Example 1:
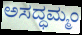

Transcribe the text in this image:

ಅಸದ್ಧಮ್ಮಂ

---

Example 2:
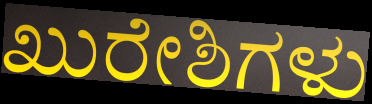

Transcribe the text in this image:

ಖುರೇಶಿಗಳು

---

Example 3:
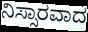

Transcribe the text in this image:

ನಿಸ್ಸಾರವಾದ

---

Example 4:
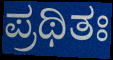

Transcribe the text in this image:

ಪ್ರಥಿತಃ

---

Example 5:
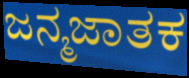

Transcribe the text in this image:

ಜನ್ಮಜಾತಕ